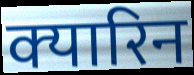
क्यारिन